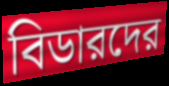
বিডারদের